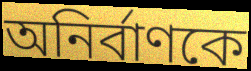
অনির্বাণকে